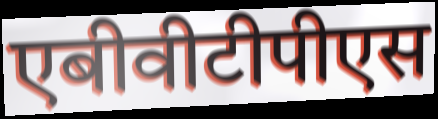
एबीवीटीपीएस